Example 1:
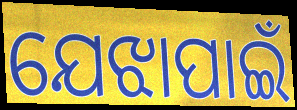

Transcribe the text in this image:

ଯେଝାପାଇଁ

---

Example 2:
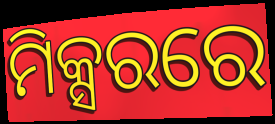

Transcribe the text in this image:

ମିକ୍ସରରେ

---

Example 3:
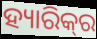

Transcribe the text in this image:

ହ୍ୟାରିକ୍‌ର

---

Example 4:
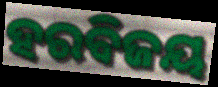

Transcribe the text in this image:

ହରବିଜୟ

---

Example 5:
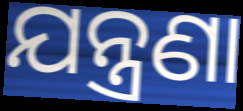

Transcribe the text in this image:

ଯନ୍ତ୍ରଣା